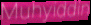
Muhyiddin